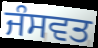
ਜੰਸਵਤ